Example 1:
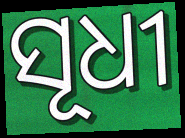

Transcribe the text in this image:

ସୂଧୀ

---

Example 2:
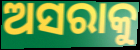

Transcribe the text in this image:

ଅସରାକୁ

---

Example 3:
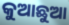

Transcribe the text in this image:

କୁଆଛୁଆ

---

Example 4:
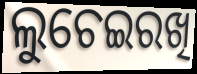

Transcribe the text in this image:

ଲୁଚେଇରଖି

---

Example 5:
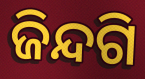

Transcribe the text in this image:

ଜିନ୍ଦଗି